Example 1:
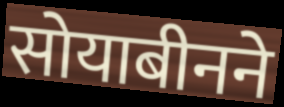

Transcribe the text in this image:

सोयाबीनने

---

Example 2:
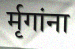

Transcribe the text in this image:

र्मृगांना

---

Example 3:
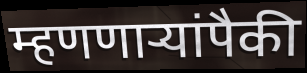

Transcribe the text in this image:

म्हणणाऱ्यांपैकी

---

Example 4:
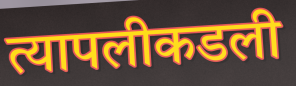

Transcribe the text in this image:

त्यापलीकडली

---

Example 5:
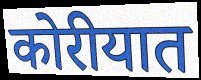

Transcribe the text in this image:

कोरीयात